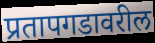
प्रतापगडावरील